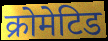
क्रोमेटिड